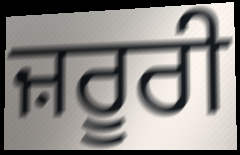
ਜ਼ਰੂਰੀ